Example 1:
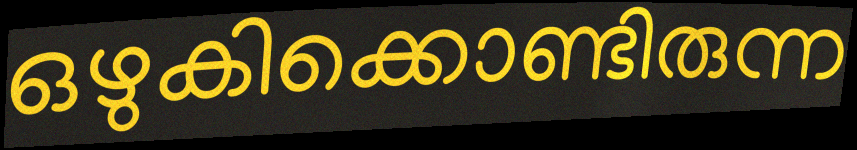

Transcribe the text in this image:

ഒഴുകിക്കൊണ്ടിരുന്ന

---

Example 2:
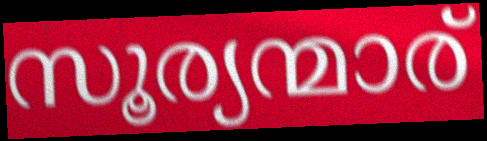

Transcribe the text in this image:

സൂര്യന്മാര്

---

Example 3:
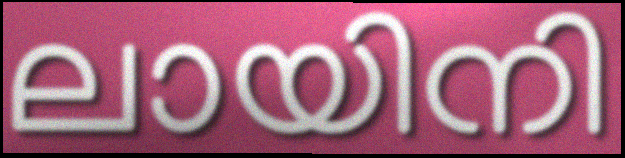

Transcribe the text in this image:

ലായിനി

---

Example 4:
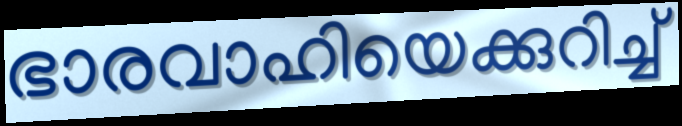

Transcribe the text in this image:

ഭാരവാഹിയെക്കുറിച്ച്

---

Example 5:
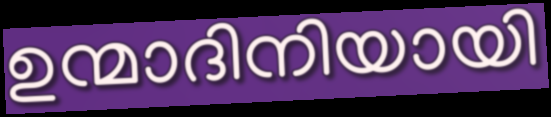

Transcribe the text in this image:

ഉന്മാദിനിയായി